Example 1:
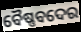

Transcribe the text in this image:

ବୈଷ୍ଣବଦେର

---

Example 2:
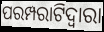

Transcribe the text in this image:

ପରମ୍ପରାଟିଦ୍ୱାରା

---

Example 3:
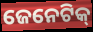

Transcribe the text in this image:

ଜେନେଟିକ୍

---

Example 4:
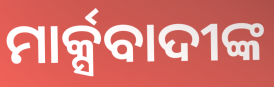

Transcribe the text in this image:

ମାର୍କ୍ସବାଦୀଙ୍କ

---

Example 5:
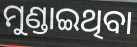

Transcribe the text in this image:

ମୁଣ୍ଡାଇଥିବା